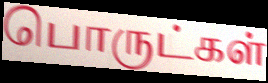
பொருட்கள்